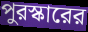
পুরস্কারের